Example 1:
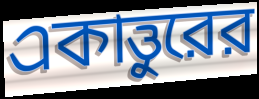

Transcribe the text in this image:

একাত্তুরের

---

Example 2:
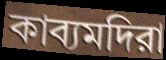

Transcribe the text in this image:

কাব্যমদিরা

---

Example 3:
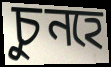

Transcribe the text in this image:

চুনহে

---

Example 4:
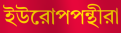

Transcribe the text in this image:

ইউরোপপন্থীরা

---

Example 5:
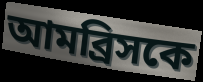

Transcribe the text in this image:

আমব্রিসকে